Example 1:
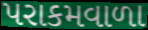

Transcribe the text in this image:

પરાકમવાળા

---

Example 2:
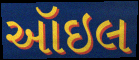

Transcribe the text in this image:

ઑઇલ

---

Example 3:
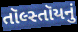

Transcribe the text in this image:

તૉલ્સ્તૉયનું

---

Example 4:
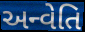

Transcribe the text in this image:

અન્વેતિ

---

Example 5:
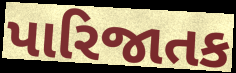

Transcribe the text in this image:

પારિજાતક